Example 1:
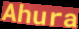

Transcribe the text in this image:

Ahura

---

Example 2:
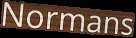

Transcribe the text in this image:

Normans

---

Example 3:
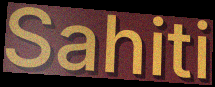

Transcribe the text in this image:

Sahiti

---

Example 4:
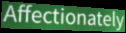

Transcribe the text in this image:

Affectionately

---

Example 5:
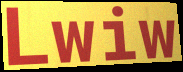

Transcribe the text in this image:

Lwiw